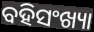
ବହିସଂଖ୍ୟା